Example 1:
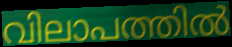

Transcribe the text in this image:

വിലാപത്തിൽ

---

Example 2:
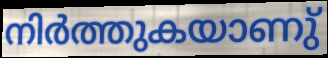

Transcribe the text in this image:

നിർത്തുകയാണു്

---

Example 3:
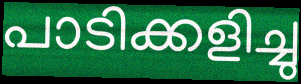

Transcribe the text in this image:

പാടിക്കളിച്ചു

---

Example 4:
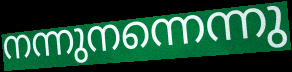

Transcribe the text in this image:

നന്നുനന്നെന്നു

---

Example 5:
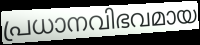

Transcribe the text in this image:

പ്രധാനവിഭവമായ